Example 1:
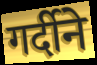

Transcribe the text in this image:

गर्दीने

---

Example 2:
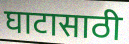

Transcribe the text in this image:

घाटासाठी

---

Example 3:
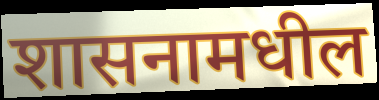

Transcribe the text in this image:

शासनामधील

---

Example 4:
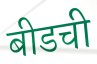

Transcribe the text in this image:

बीडची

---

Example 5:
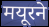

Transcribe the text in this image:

मयूरने